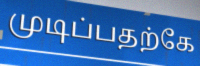
முடிப்பதற்கே